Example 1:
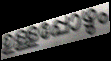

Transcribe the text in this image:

ഉള്ളപ്പോഴും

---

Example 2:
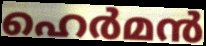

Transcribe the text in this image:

ഹെർമൻ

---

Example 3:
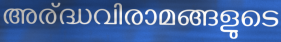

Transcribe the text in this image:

അര്ദ്ധവിരാമങ്ങളുടെ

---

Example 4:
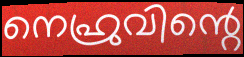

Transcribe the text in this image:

നെഹ്രുവിന്റെ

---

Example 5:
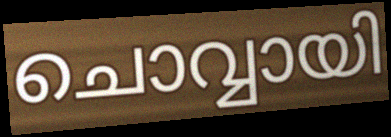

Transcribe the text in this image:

ചൊവ്വായി